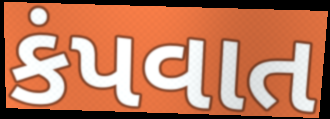
કંપવાત